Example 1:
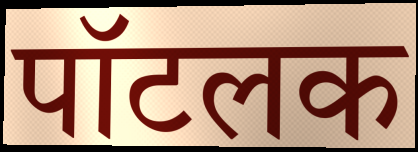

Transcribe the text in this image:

पॉटलक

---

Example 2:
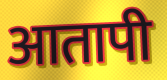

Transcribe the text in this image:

आतापी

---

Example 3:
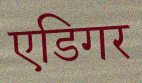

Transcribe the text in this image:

एडिगर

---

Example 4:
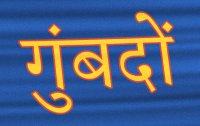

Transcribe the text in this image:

गुंबदों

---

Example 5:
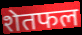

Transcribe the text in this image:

शेतफल